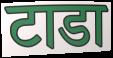
टाडा